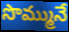
సొమ్మునే